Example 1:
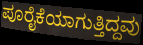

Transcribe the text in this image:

ಪೂರೈಕೆಯಾಗುತ್ತಿದ್ದವು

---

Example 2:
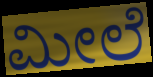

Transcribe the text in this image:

ಮೀಲೆ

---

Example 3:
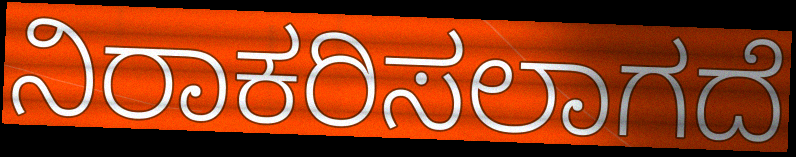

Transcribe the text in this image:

ನಿರಾಕರಿಸಲಾಗದೆ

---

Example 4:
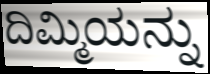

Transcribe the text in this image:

ದಿಮ್ಮಿಯನ್ನು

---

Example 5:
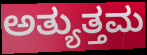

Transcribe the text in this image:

ಅತ್ಯುತ್ತಮ